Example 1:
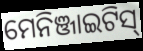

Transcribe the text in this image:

ମେନିଞ୍ଜାଇଟିସ୍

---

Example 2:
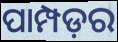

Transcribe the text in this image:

ପାମ୍ପଡ଼ର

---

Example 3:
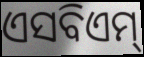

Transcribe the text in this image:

ଏସବିଏମ୍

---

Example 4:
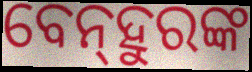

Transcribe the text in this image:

ବେନ୍‍ହୁରଙ୍କ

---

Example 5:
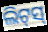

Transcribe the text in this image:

ଲିଟ୍‌ସ୍